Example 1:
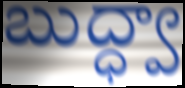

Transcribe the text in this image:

బుద్ధ్వా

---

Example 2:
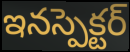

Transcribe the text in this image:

ఇనస్పెక్టర్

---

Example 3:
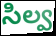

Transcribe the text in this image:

సిల్వ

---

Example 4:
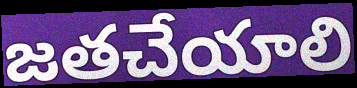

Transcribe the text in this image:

జతచేయాలి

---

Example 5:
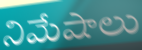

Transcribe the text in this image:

నిమేషాలు